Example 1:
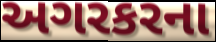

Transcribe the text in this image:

અગરકરના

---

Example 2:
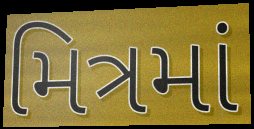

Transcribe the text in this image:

મિત્રમાં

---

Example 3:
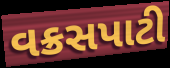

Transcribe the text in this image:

વક્રસપાટી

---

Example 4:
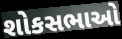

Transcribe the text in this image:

શોકસભાઓ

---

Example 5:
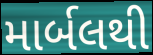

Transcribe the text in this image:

માર્બલથી